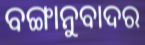
ବଙ୍ଗାନୁବାଦର